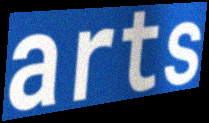
arts